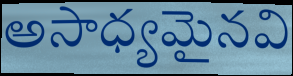
అసాధ్యమైనవి